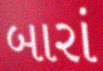
બારાં